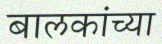
बालकांच्या